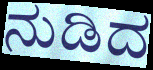
ನುಡಿದ